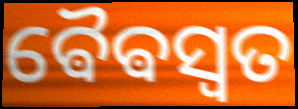
ଵୈଵସ୍ୱତ